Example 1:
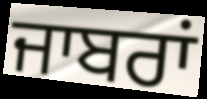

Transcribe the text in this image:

ਜਾਬਰਾਂ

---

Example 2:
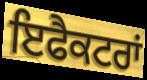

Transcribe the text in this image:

ਇਫੈਕਟਰਾਂ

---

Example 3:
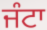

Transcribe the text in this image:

ਜੰਟਾ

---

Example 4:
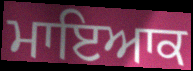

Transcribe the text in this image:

ਮਾਇਆਕ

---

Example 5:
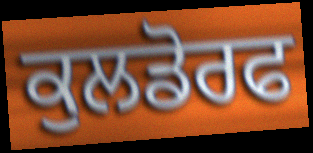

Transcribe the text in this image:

ਕੁਲਡੋਰਫ